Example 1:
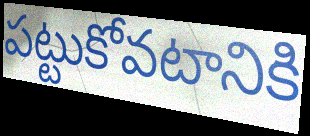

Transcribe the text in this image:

పట్టుకోవటానికి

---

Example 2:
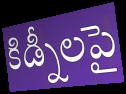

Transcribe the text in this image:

కిడ్నీలపై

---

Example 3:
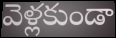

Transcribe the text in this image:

వెళ్లకుండా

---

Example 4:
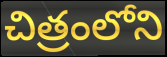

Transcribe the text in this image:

చిత్రంలోని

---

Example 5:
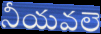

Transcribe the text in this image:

నీయవలె